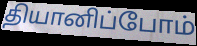
தியானிப்போம்